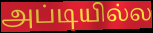
அப்டியில்ல